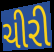
ચીરી